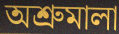
অশ্রুমালা